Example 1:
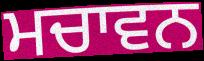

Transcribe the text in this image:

ਮਚਾਵਨ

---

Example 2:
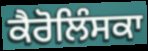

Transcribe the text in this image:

ਕੈਰੋਲਿੰਸਕਾ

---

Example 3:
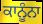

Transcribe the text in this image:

ਕਾਨੂੰਨਾ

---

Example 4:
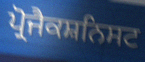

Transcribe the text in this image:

ਪ੍ਰੋਜੈਕਸ਼ਨਿਸਟ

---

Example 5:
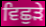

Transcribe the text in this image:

ਵਿਛੁੜੇ